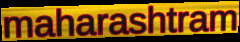
maharashtram